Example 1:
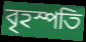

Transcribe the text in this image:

বৃহস্পতি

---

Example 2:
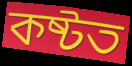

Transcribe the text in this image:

কষ্টত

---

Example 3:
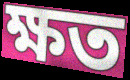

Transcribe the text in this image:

ক্ষত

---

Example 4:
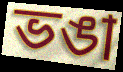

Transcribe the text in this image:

ভঙা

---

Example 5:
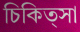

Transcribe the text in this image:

চিকিত্সা